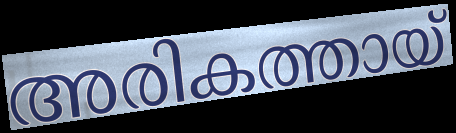
അരികത്തായ്